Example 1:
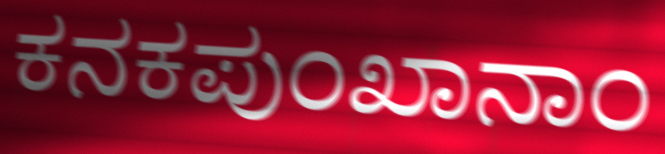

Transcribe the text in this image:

ಕನಕಪುಂಖಾನಾಂ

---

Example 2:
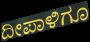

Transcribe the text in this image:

ದೀಪಾಳಿಗೂ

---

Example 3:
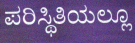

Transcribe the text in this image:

ಪರಿಸ್ಥಿತಿಯಲ್ಲೂ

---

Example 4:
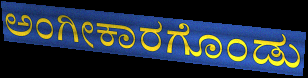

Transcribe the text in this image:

ಅಂಗೀಕಾರಗೊಂಡು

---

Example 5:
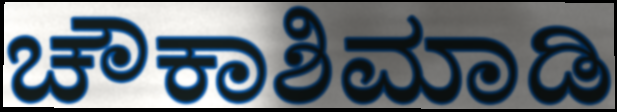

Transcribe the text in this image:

ಚೌಕಾಶಿಮಾಡಿ